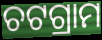
ଚଟଗ୍ରାମ